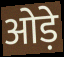
ओड़े